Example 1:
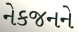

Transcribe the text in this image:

નેકજનને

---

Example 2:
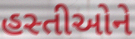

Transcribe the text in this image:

હસ્તીઓને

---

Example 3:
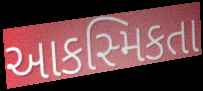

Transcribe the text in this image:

આકસ્મિકતા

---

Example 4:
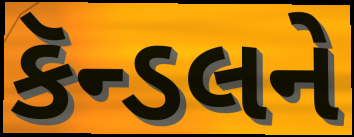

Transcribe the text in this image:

કૅન્ડલને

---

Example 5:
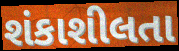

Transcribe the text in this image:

શંકાશીલતા